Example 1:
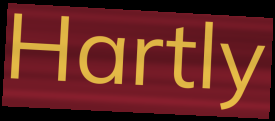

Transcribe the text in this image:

Hartly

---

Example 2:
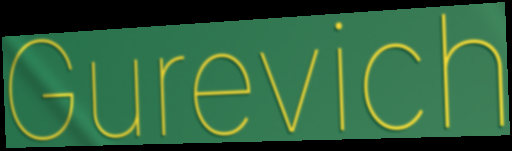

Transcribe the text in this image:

Gurevich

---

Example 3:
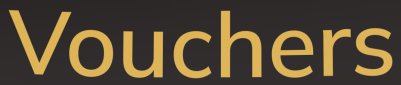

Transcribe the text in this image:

Vouchers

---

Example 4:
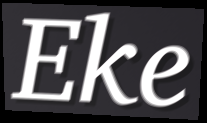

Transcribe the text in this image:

Eke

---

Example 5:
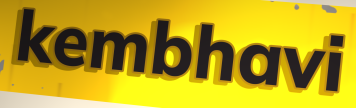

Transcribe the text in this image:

kembhavi